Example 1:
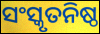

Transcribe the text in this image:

ସଂସ୍କୃତନିଷ୍ଠ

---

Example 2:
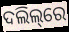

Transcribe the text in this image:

ଦଲିଲ୍‌ରେ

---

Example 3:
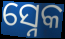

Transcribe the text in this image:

ସ୍ନେକ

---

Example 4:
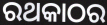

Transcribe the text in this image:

ରଥକାଠର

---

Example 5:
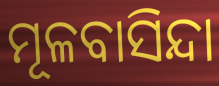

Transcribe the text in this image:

ମୂଳବାସିନ୍ଦା